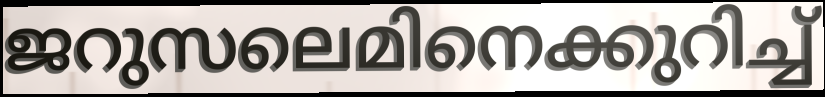
ജറുസലെമിനെക്കുറിച്ച്